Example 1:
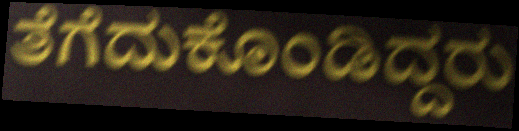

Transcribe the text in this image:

ತೆಗೆದುಕೊಂಡಿದ್ದರು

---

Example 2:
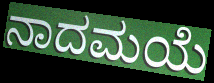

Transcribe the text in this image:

ನಾದಮಯೆ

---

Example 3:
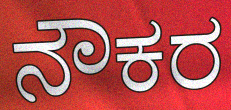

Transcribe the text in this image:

ನೌಕರ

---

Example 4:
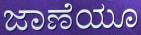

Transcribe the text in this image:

ಜಾಣೆಯೂ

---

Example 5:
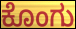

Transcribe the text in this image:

ಕೊಂಗು